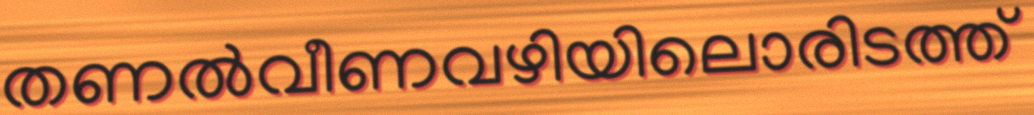
തണൽവീണവഴിയിലൊരിടത്ത്